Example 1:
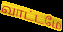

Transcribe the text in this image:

வாட்டமே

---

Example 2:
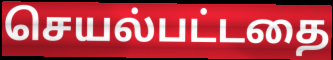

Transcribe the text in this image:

செயல்பட்டதை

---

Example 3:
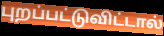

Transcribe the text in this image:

புறப்பட்டுவிட்டால்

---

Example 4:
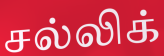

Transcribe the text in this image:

சல்லிக்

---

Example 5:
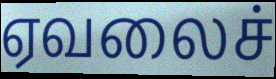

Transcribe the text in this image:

ஏவலைச்